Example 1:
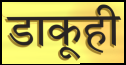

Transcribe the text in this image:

डाकूही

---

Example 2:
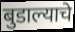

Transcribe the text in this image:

बुडाल्याचे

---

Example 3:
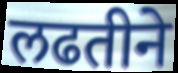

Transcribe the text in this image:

लढतीने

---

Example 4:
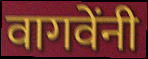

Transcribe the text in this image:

वागवेंनी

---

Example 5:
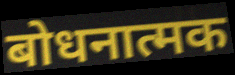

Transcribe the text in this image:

बोधनात्मक